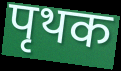
पृथक